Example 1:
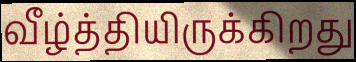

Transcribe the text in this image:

வீழ்த்தியிருக்கிறது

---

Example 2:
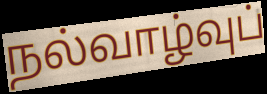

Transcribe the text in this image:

நல்வாழ்வுப்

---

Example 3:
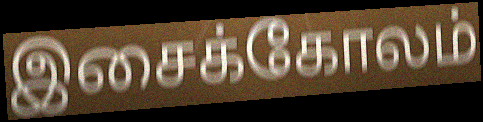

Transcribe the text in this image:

இசைக்கோலம்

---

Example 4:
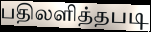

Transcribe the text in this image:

பதிலளித்தபடி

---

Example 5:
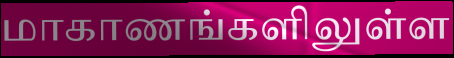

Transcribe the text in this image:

மாகாணங்களிலுள்ள